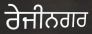
ਰੇਜੀਨਗਰ